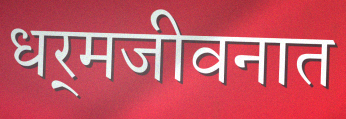
धर्मजीवनात